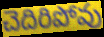
చెదిరిపోవు